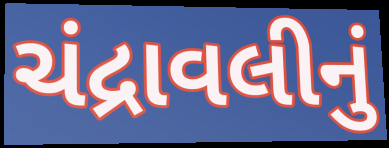
ચંદ્રાવલીનું